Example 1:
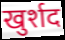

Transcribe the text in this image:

खुर्शद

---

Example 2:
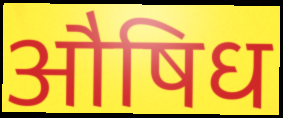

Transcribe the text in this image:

औषिध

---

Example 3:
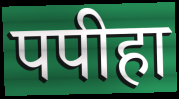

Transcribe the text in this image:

पपीहा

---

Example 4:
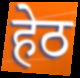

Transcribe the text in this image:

हेठ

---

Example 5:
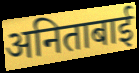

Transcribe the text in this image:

अनिताबाई